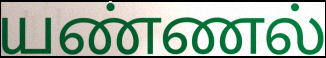
யண்ணல்